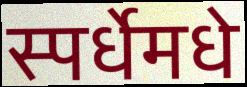
स्पर्धेमधे